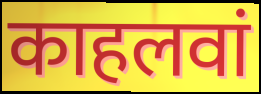
काहलवां